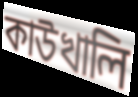
কাউখালি